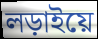
লড়াইয়ে